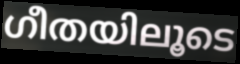
ഗീതയിലൂടെ